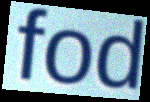
fod